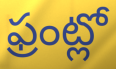
ఫ్రంట్లో